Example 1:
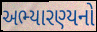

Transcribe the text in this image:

અભ્યારણ્યનો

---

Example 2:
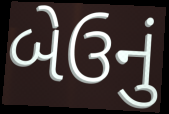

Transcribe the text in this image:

બેઉનું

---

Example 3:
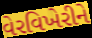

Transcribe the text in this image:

વેરવિખેરીને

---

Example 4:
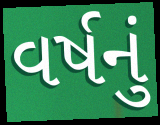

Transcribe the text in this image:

વર્ષનું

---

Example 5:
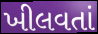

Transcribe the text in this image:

ખીલવતાં